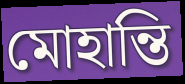
মোহান্তি